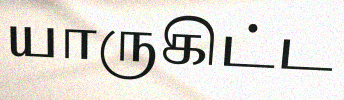
யாருகிட்ட